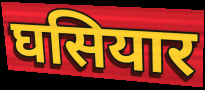
घसियार